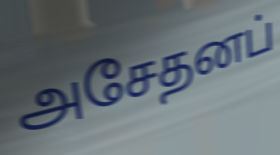
அசேதனப்